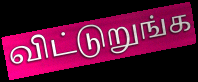
விட்டுறுங்க